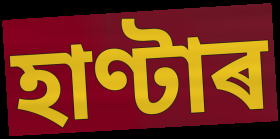
হাণ্টাৰ